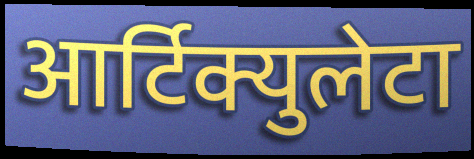
आर्टिक्युलेटा